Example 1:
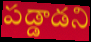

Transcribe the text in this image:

పడ్డాడని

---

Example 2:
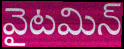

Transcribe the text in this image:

వైటమిన్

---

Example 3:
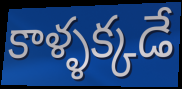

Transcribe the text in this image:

కాళ్ళక్కడే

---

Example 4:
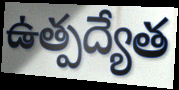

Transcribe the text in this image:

ఉత్పద్యేత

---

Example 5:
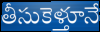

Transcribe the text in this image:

తీసుకెళ్తూనే